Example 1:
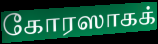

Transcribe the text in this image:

கோரஸாகக்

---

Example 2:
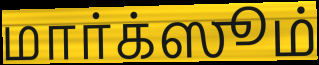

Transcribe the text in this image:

மார்க்ஸூம்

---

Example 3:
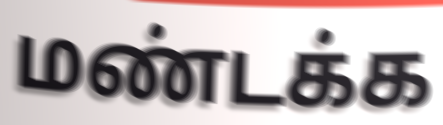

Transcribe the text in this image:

மண்டக்க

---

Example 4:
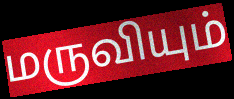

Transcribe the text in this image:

மருவியும்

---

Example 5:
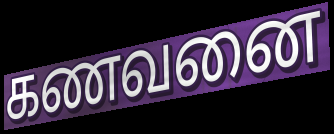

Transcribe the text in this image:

கணவனை